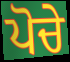
ਪੋਚੇ